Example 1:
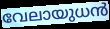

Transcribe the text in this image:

വേലായുധൻ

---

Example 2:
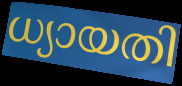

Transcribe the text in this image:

ധ്യായതി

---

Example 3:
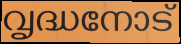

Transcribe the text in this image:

വൃദ്ധനോട്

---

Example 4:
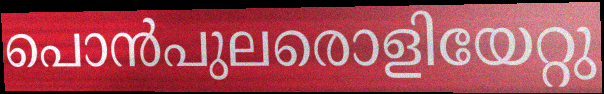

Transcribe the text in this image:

പൊൻപുലരൊളിയേറ്റു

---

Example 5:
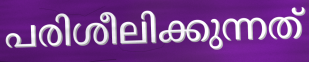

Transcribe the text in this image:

പരിശീലിക്കുന്നത്